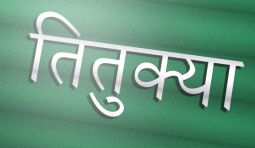
तितुक्या